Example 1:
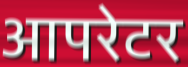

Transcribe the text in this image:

आपरेटर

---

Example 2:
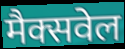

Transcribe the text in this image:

मैक्‍सवेल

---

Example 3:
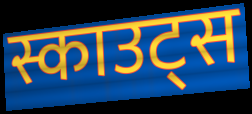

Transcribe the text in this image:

स्काउट्स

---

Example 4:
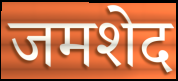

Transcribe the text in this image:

जमशेद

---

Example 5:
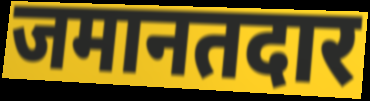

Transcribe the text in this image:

जमानतदार